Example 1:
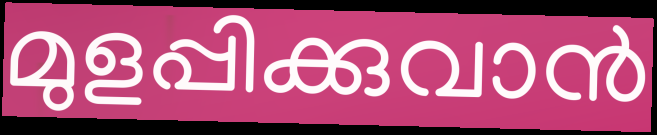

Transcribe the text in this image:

മുളപ്പിക്കുവാൻ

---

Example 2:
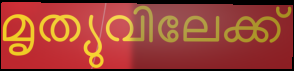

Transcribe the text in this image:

മൃത്യുവിലേക്ക്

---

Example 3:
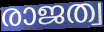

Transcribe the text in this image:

രാജത്വ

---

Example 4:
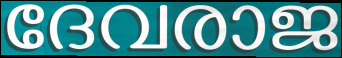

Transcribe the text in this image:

ദേവരാജ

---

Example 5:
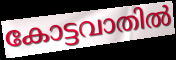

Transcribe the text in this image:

കോട്ടവാതിൽ